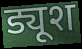
ड्यूश